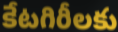
కేటగిరీలకు